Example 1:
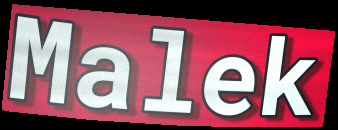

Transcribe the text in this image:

Malek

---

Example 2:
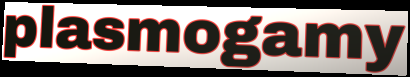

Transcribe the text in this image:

plasmogamy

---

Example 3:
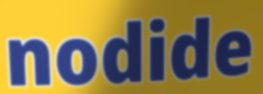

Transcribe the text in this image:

nodide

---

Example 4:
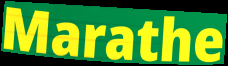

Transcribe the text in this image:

Marathe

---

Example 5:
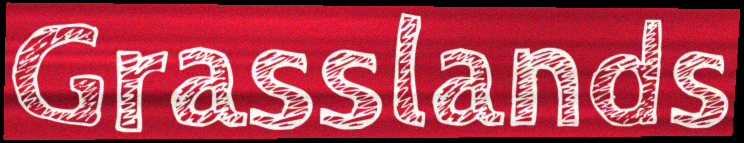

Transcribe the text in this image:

Grasslands